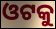
ଓଟକୁ